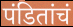
पंडितांचं